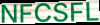
NFCSFL